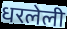
धरलेली